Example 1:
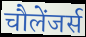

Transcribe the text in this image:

चौलेंजर्स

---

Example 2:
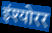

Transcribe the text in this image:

इंश्योरर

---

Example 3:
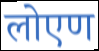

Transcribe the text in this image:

लोएण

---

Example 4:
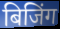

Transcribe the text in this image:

बिजिंग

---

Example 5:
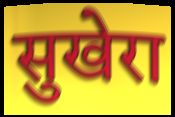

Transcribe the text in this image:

सुखेरा